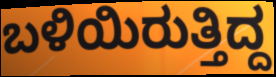
ಬಳಿಯಿರುತ್ತಿದ್ದ